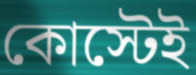
কোস্টেই